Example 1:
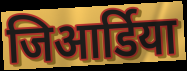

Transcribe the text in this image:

जिआर्डिया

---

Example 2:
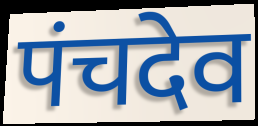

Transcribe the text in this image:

पंचदेव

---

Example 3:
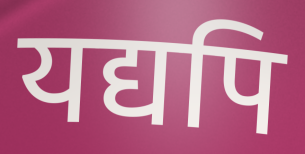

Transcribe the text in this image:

यद्यपि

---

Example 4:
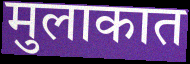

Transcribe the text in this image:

मुलाकात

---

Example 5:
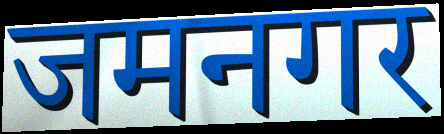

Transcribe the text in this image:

जमनगर